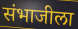
संभाजीला